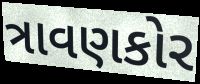
ત્રાવણકોર